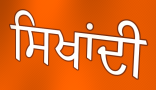
ਸਿਖਾਂਦੀ